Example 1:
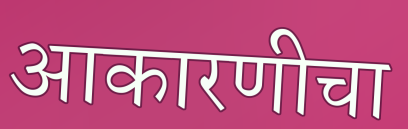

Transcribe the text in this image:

आकारणीचा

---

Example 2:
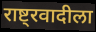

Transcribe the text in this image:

राष्ट्रवादीला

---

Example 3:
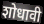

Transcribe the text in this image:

शोधावी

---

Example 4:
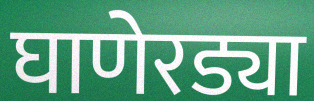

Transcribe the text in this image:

घाणेरड्या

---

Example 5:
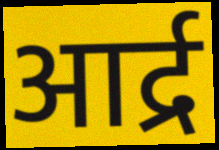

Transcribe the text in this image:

आर्द्र